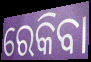
ରେକିବା